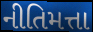
નીતિમત્તા